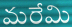
మరేమి